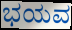
ಭಯವ